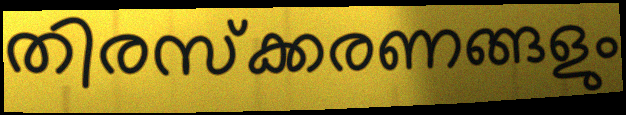
തിരസ്ക്കരണങ്ങളും